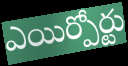
ఎయిర్పోర్టు